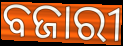
ବଜାରୀ